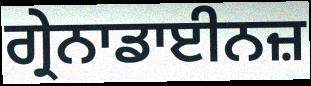
ਗ੍ਰੇਨਾਡਾਈਨਜ਼